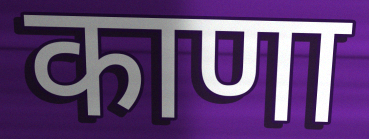
काणा